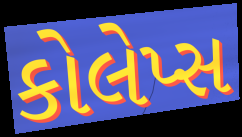
કોલેપ્સ